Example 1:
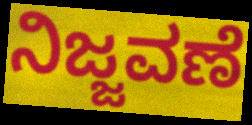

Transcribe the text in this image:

ನಿಜ್ಜವಣೆ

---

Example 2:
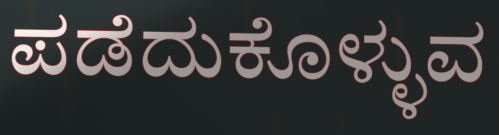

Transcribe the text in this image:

ಪಡೆದುಕೊಳ್ಳುವ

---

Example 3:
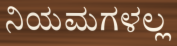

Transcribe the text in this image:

ನಿಯಮಗಳಲ್ಲ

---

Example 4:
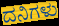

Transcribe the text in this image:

ದನಿಗಳು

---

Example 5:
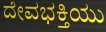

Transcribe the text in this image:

ದೇವಭಕ್ತಿಯು